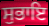
ਸੁਭਾਇ